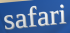
safari